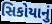
સિકોયાનું